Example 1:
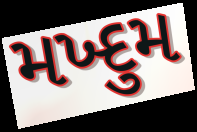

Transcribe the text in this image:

મખ્દુમ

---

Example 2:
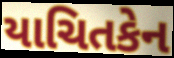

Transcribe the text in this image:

યાચિતકેન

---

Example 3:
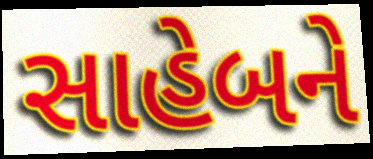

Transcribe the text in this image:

સાહેબને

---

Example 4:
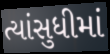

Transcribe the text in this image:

ત્યાંસુધીમાં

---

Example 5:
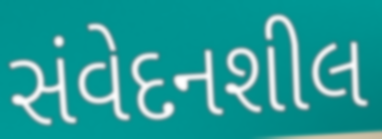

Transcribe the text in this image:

સંવેદનશીલ